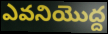
ఎవనియొద్ద